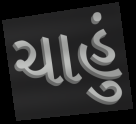
ચાહું